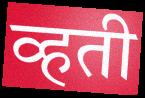
व्हती